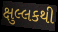
ક્ષુલ્લકથી